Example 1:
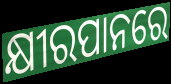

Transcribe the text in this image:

କ୍ଷୀରପାନରେ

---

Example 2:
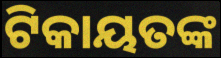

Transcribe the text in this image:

ଟିକାୟତଙ୍କ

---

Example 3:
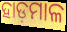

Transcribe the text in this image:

ହାଡ଼ମାଳ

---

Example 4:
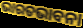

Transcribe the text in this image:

ଭାରତଭାବନା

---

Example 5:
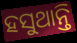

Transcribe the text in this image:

ହସୁଥାନ୍ତି